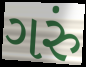
ગરું